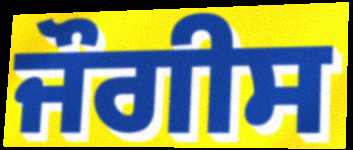
ਜੌਗੀਸ